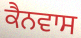
ਕੈਨਵਾਸ